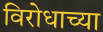
विरोधाच्या